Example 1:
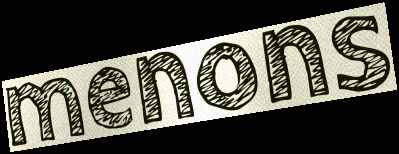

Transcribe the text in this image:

menons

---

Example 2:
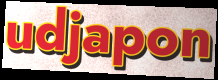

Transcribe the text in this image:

udjapon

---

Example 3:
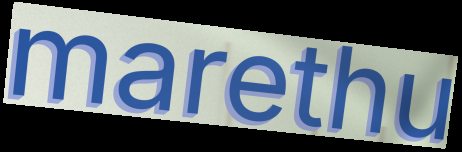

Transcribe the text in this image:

marethu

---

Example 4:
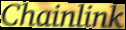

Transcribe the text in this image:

Chainlink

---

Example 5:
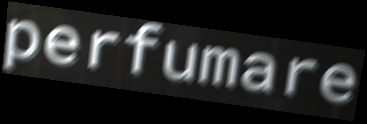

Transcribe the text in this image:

perfumare